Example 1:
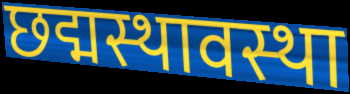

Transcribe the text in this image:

छद्मस्थावस्था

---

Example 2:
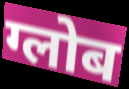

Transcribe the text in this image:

ग्लोब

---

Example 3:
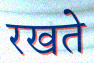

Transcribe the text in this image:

रखते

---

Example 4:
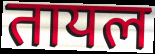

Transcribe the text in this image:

तायल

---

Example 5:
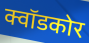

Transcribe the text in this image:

क्वॉडकोर